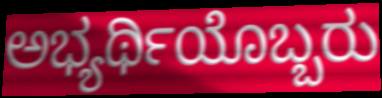
ಅಭ್ಯರ್ಥಿಯೊಬ್ಬರು